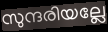
സുന്ദരിയല്ലേ